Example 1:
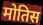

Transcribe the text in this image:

मोतिस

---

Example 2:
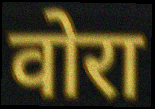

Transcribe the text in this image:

वोरा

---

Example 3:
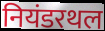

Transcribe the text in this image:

नियंडरथल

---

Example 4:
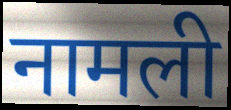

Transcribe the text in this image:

नामली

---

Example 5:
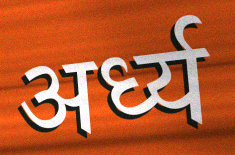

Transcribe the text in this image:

अर्ध्य